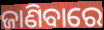
ଜାଣିବାରେ